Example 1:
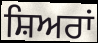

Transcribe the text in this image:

ਸ਼ਿਅਰਾਂ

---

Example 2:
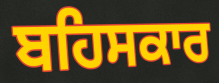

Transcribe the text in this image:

ਬਹਿਸਕਾਰ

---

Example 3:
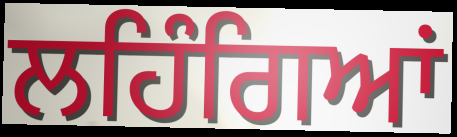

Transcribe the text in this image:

ਲਹਿੰਗਿਆਂ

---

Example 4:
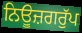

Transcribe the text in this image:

ਨਿਊਜ਼ਗਰੁੱਪ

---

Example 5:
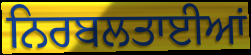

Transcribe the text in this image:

ਨਿਰਬਲਤਾਈਆਂ